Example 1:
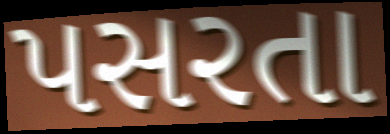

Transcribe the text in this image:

પસરતા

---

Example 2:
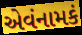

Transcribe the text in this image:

એવંનામકં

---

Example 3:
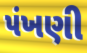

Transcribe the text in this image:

પંખણી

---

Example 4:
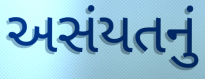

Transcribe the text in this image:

અસંયતનું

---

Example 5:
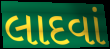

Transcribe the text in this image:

લાદવાં